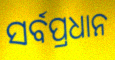
ସର୍ବପ୍ରଧାନ